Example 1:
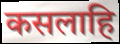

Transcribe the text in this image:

कसलाहि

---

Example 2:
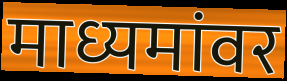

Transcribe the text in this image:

माध्यमांवर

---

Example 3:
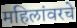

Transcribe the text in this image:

महिलांवरचे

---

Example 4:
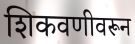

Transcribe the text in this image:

शिकवणीवरून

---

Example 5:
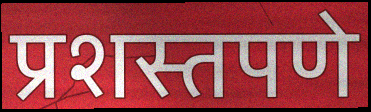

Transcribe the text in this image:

प्रशस्तपणे